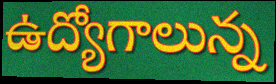
ఉద్యోగాలున్న